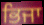
ਭਿਜਾ